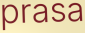
prasa